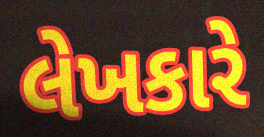
લેખકારે